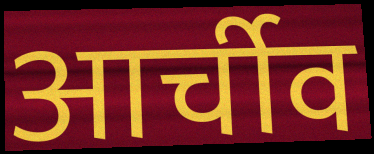
आर्चीव